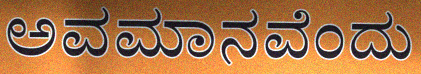
ಅವಮಾನವೆಂದು